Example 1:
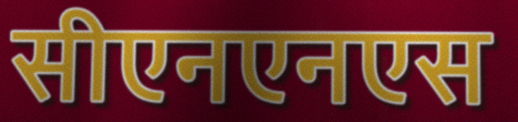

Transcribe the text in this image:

सीएनएनएस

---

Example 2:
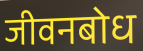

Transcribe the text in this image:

जीवनबोध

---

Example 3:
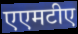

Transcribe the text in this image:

एएमटीए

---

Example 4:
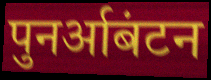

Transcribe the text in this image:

पुनर्आबंटन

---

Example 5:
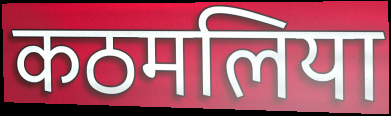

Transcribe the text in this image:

कठमलिया